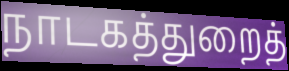
நாடகத்துறைத்